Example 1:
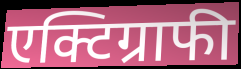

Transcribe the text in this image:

एक्टिग्राफी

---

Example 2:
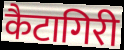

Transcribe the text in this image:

कैटागिरी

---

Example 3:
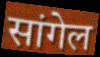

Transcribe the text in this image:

सांगेल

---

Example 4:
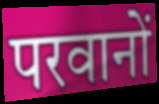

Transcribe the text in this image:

परवानों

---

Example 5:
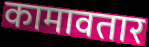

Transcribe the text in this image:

कामावतार